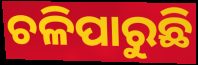
ଚଳିପାରୁଛି